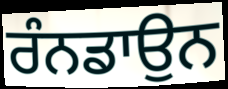
ਰੰਨਡਾਉਨ